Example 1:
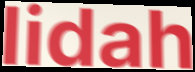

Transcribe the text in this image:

lidah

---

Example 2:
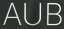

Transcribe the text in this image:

AUB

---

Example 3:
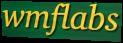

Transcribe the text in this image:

wmflabs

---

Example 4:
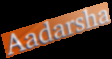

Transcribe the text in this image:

Aadarsha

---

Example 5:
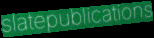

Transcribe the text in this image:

slatepublications